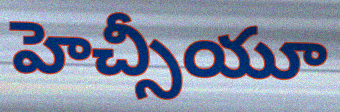
హెచ్సీయూ